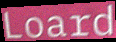
Loard